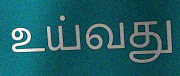
உய்வது